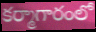
కర్మాగారంలో